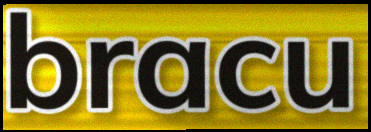
bracu